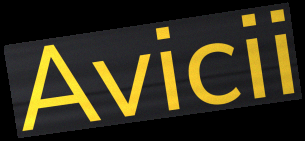
Avicii